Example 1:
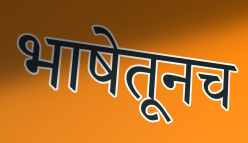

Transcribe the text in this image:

भाषेतूनच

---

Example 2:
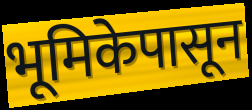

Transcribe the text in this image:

भूमिकेपासून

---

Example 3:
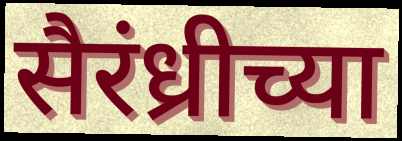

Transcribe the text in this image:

सैरंध्रीच्या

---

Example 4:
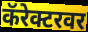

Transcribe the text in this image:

कॅरेक्टरवर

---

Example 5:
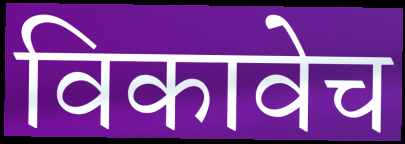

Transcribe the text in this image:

विकावेच